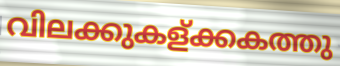
വിലക്കുകള്ക്കകത്തു